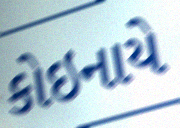
કોઇનાયે